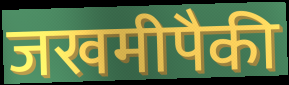
जखमीपैकी